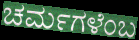
ಚರ್ಮಗಳೆಂಬ